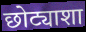
छोट्याशा